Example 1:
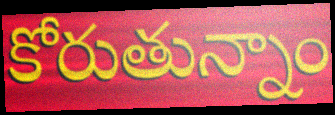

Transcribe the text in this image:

కోరుతున్నాం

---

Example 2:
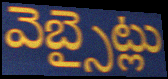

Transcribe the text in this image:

వెబ్సైట్లు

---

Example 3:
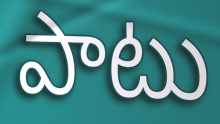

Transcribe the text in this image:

పాటు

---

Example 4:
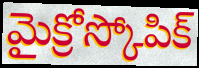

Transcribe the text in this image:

మైక్రోస్కోపిక్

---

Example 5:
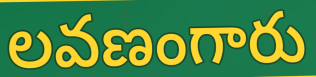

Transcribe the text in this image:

లవణంగారు